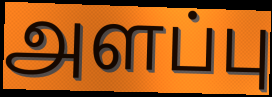
அளப்பு